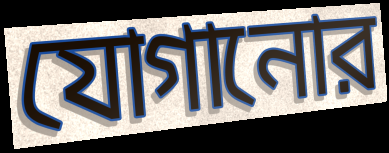
যোগানোর